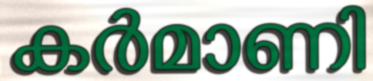
കർമാണി